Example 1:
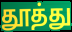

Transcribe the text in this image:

தூத்து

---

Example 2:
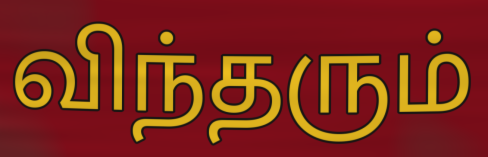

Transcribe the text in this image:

விந்தரும்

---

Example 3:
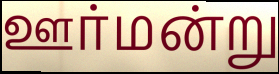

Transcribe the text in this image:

ஊர்மன்று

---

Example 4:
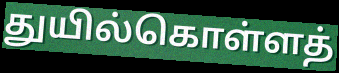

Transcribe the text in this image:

துயில்கொள்ளத்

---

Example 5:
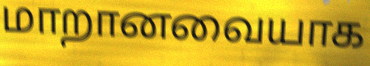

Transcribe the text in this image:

மாறானவையாக